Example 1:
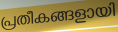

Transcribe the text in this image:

പ്രതീകങ്ങളായി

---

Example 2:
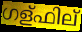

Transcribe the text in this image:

ഗള്ഫില്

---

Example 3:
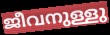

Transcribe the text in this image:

ജീവനുള്ളു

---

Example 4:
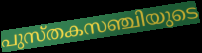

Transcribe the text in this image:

പുസ്തകസഞ്ചിയുടെ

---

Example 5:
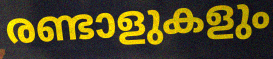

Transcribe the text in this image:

രണ്ടാളുകളും